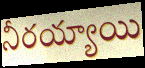
నీరయ్యాయి